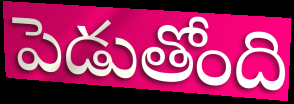
పెడుతోంది